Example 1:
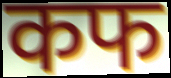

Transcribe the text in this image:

कफ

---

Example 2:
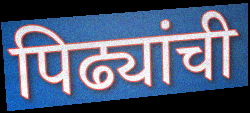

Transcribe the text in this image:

पिढ्यांची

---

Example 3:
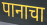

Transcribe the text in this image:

पानाचा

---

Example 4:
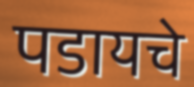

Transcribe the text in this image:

पडायचे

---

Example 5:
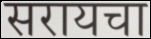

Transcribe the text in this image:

सरायचा